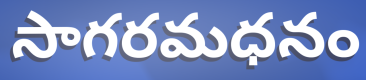
సాగరమధనం